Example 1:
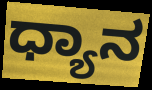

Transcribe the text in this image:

ಧ್ಯಾನ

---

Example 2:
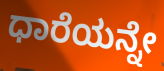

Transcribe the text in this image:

ಧಾರೆಯನ್ನೇ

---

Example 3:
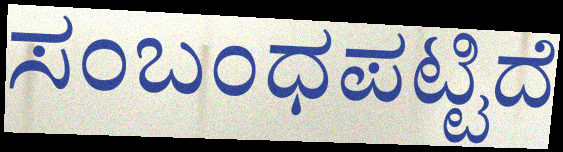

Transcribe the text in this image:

ಸಂಬಂಧಪಟ್ಟಿದೆ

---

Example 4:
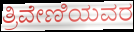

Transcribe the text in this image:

ತ್ರಿವೇಣಿಯವರ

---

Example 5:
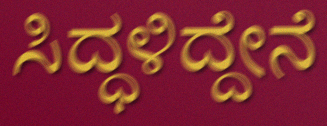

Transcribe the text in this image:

ಸಿದ್ಧಳಿದ್ದೇನೆ